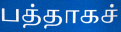
பத்தாகச்